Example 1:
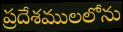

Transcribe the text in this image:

ప్రదేశములలోను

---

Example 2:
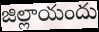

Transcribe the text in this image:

జిల్లాయందు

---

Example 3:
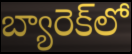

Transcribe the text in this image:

బ్యారెక్‌లో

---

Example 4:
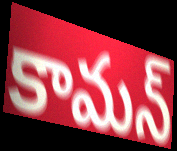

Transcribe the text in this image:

కామన్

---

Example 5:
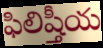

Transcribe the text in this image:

ఫిలిష్తీయ